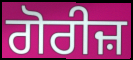
ਗੋਰੀਜ਼